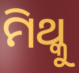
ମିଥ୍କୁ